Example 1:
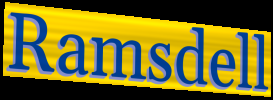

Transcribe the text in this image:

Ramsdell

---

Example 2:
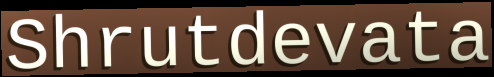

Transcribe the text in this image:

Shrutdevata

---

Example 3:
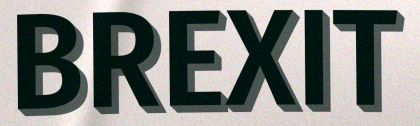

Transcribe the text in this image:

BREXIT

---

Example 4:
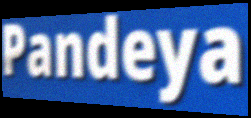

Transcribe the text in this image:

Pandeya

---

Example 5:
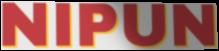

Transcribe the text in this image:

NIPUN